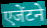
एजेंटने